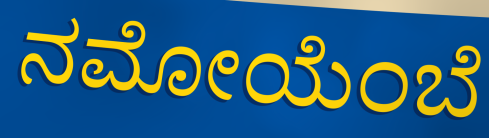
ನಮೋಯೆಂಬೆ